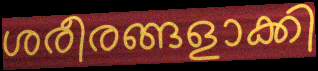
ശരീരങ്ങളാക്കി